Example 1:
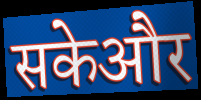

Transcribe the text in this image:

सकेऔर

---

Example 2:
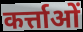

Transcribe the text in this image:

कर्त्ताओं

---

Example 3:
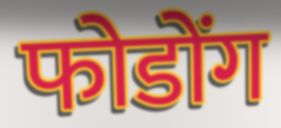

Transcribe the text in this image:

फोडोंग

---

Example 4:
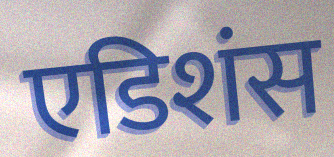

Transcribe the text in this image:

एडिशंस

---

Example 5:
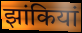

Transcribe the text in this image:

झांकियां